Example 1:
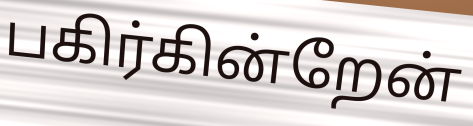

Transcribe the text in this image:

பகிர்கின்றேன்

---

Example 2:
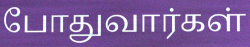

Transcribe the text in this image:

போதுவார்கள்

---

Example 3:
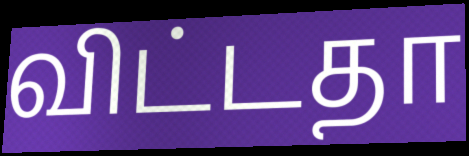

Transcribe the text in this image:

விட்டதா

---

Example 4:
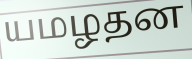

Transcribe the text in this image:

யமழதன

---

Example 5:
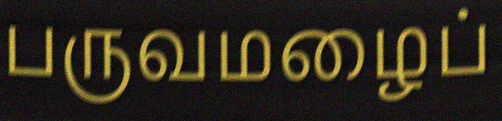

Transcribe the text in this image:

பருவமழைப்